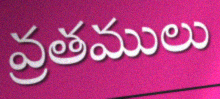
వ్రతములు